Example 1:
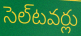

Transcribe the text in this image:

సెల్‌టవర్లు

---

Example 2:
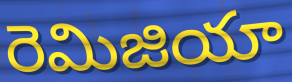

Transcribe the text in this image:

రెమిజియా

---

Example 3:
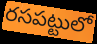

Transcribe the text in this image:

రసపట్టులో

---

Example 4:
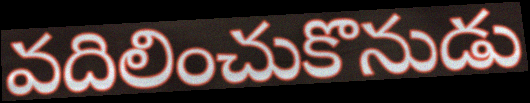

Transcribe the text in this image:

వదిలించుకొనుడు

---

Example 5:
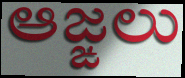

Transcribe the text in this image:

ఆజ్ఙలు